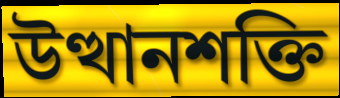
উত্থানশক্তি